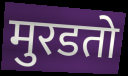
मुरडतो